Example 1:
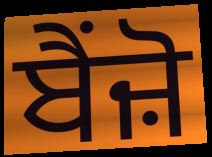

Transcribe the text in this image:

ਬੈਂਜ਼ੋ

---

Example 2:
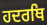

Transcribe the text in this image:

ਹਦਰਥਿ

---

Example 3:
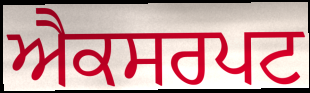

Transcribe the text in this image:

ਐਕਸਰਪਟ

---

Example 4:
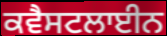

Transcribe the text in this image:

ਕਵੈਸਟਲਾਈਨ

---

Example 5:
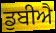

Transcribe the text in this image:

ਡੁਬੀਐ